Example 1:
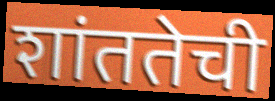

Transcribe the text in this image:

शांततेची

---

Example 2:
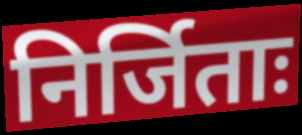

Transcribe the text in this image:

निर्जिताः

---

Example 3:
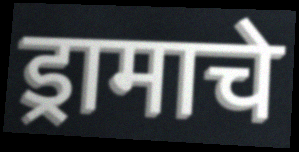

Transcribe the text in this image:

ड्रामाचे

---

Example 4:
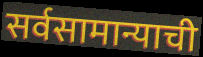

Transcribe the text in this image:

सर्वसामान्याची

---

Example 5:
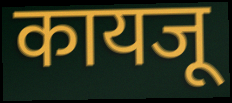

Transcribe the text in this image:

कायजू